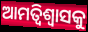
ଆମତ୍ବିଶ୍ୱାସକୁ